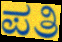
ಪತಿ